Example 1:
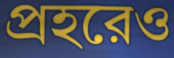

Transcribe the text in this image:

প্রহরেও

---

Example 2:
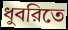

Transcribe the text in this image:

ধুবরিতে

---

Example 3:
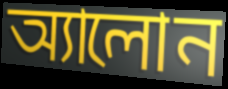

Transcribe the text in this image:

অ্যালোন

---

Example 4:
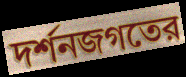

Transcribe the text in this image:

দর্শনজগতের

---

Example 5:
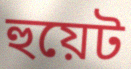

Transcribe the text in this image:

হুয়েট